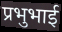
प्रभुभाई